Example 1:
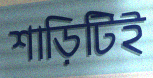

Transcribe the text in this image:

শাড়িটিই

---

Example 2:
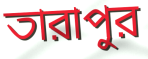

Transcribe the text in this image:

তারাপুর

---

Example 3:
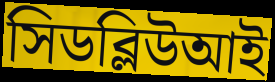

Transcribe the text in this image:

সিডব্লিউআই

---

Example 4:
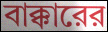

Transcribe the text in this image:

বাক্কারের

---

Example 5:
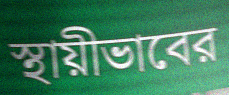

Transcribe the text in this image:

স্থায়ীভাবের